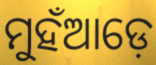
ମୁହଁଆଡ଼େ